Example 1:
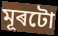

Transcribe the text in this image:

মূৰটো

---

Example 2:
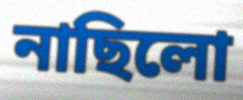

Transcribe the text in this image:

নাছিলো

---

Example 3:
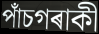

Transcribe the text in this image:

পাঁচগৰাকী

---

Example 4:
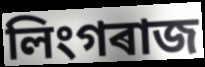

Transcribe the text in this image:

লিংগৰাজ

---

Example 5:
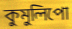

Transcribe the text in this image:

কুমুলিপো